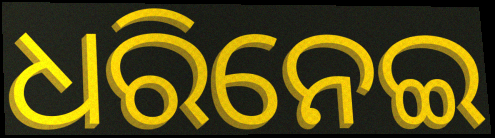
ଧରିନେଇ